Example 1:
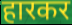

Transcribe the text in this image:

हारकर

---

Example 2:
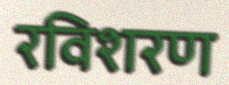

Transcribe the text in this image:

रविशरण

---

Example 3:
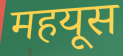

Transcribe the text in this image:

महयूस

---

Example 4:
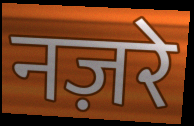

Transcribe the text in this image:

नज़रे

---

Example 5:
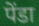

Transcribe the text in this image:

पेंडा